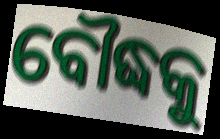
ବୌଦ୍ଧକୁ